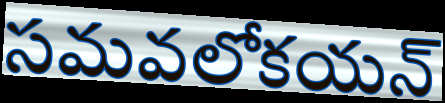
సమవలోకయన్